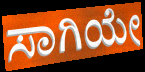
ಸಾಗಿಯೇ